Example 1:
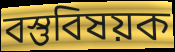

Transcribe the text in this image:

বস্তুবিষয়ক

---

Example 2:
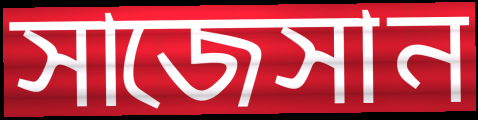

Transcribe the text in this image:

সাজেসান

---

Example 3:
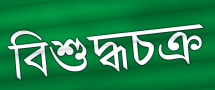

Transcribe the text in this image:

বিশুদ্ধচক্র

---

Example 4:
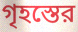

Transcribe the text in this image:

গৃহস্তের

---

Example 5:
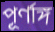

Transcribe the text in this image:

পূর্ণাঙ্গ